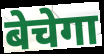
बेचेगा